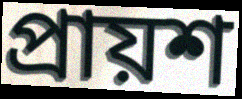
প্রায়শ